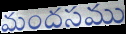
మందసము